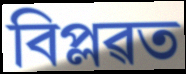
বিপ্লৱত